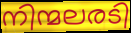
നിന്മലരടി